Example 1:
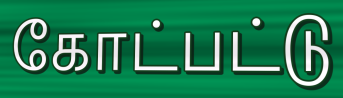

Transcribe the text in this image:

கோட்பட்டு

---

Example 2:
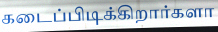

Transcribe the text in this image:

கடைப்பிடிக்கிறார்களா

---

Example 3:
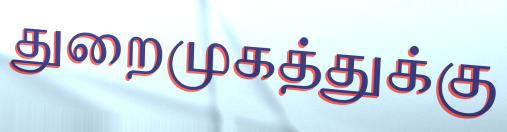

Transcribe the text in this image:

துறைமுகத்துக்கு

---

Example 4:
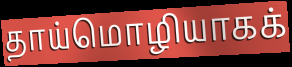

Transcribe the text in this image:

தாய்மொழியாகக்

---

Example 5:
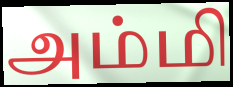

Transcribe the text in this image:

அம்மி